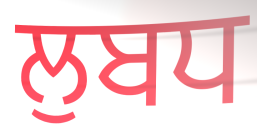
ਲੁਬਧ